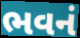
ભવનં